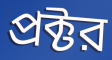
প্রক্টর